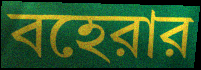
বহেরার